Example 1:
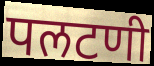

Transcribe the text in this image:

पलटणी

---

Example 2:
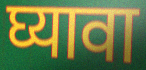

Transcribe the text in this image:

घ्यावा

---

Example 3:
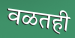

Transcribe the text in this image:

वळतही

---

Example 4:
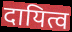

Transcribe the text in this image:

दायित्व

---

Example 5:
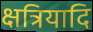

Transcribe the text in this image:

क्षत्रियादि